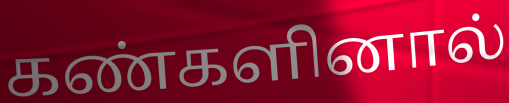
கண்களினால்